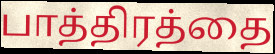
பாத்திரத்தை